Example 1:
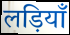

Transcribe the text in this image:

लड़ियाँ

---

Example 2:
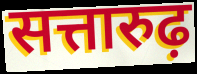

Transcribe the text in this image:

सत्तारुढ़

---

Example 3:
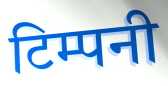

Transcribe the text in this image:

टिम्पनी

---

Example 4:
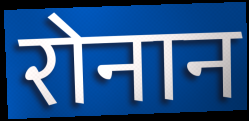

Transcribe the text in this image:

रोनान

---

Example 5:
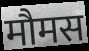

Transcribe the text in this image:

मौमस